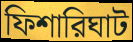
ফিশারিঘাট